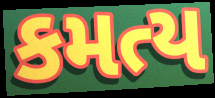
કમત્ય